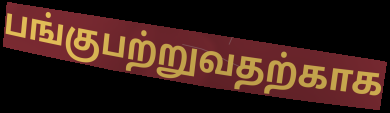
பங்குபற்றுவதற்காக